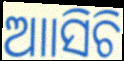
ଆାସିଚି